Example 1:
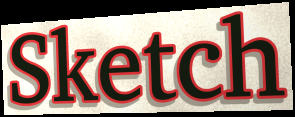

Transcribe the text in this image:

Sketch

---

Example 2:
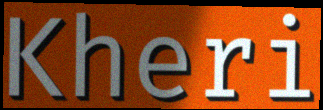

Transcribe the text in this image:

Kheri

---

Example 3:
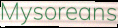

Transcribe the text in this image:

Mysoreans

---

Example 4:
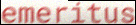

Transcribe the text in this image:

emeritus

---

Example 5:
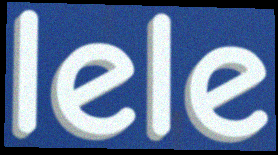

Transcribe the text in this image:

lele